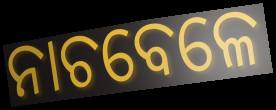
ନାଚବେଳେ